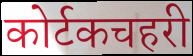
कोर्टकचहरी